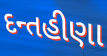
દન્તહીણા